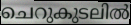
ചെറുകുടലിൽ